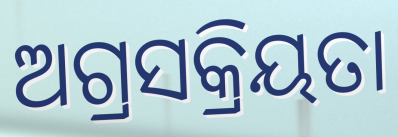
ଅଗ୍ରସକ୍ରିୟତା